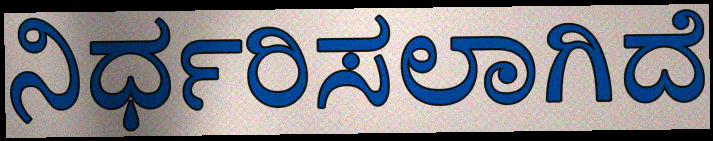
ನಿರ್ಧರಿಸಲಾಗಿದೆ